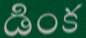
డింక